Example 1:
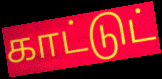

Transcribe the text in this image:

காட்டுட்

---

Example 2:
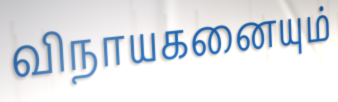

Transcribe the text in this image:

விநாயகனையும்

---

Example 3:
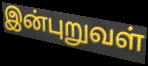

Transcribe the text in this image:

இன்புறுவள்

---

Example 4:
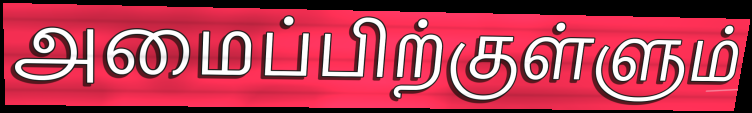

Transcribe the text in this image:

அமைப்பிற்குள்ளும்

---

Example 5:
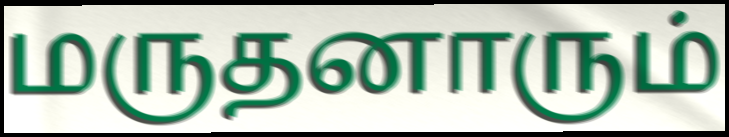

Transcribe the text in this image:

மருதனாரும்